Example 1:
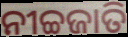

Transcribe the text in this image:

ନୀଚ୍ଚଜାତି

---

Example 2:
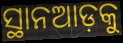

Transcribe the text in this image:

ସ୍ଥାନଆଡ଼କୁ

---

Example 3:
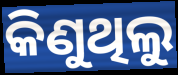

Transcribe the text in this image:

କିଣୁଥିଲୁ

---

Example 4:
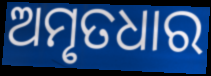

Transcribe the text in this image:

ଅମୃତଧାର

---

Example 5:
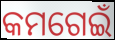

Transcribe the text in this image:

କମଗେଇଁ